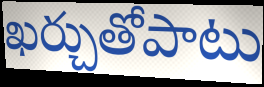
ఖర్చుతోపాటు